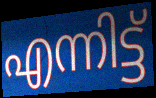
എന്നിട്ട്